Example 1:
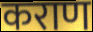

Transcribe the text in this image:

कराण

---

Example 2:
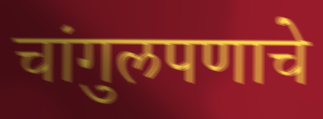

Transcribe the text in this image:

चांगुलपणाचे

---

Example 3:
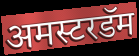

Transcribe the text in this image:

अमस्टरडॅम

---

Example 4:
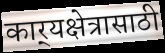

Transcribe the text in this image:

कार्यक्षेत्रासाठी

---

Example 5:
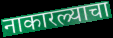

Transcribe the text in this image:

नाकारल्याचा